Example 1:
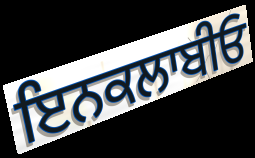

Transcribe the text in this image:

ਇਨਕਲਾਬੀਓ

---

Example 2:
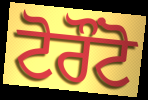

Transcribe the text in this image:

ਟੋਰੌੰਟੋ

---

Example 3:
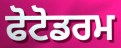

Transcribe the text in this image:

ਫੋਟੋਡਰਮ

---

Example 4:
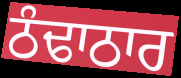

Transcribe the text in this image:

ਠੰਢਾਠਾਰ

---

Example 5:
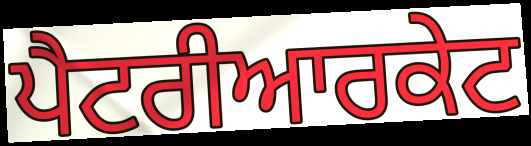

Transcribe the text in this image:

ਪੈਟਰੀਆਰਕੇਟ